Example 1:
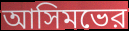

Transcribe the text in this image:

আসিমভের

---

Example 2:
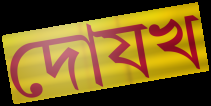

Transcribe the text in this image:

দোযখ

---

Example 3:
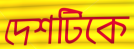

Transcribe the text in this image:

দেশটিকে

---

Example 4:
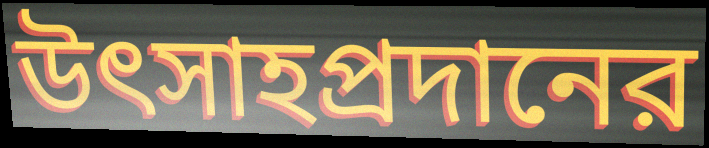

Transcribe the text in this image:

উৎসাহপ্রদানের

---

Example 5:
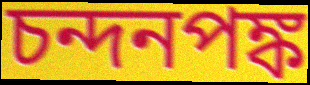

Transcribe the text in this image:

চন্দনপঙ্ক